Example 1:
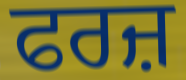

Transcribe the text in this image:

ਫਰਜ਼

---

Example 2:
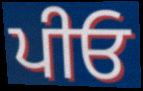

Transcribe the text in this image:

ਪੀਓ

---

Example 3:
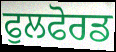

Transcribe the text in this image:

ਫੁਲਫੋਰਡ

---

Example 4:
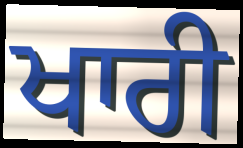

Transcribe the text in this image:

ਖਾਰੀ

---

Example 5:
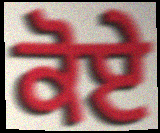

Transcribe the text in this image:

ਕੋਏ